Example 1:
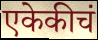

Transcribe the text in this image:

एकेकीचं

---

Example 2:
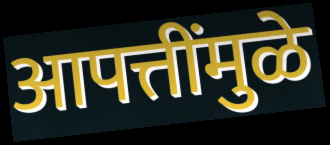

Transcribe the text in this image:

आपत्तींमुळे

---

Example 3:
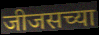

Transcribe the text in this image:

जीजसच्या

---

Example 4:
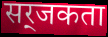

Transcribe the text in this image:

सर्जकता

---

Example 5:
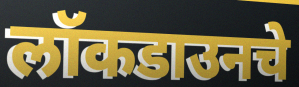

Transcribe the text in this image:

लॉकडाउनचे